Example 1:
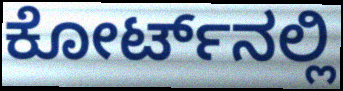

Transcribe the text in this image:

ಕೋರ್ಟ್‌ನಲ್ಲಿ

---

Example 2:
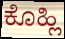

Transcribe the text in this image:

ಕೊಹ್ಲಿ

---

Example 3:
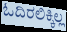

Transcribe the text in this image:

ಓದಿರಲಿಕ್ಕಿಲ್ಲ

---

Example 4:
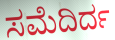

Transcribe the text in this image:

ಸಮೆದಿರ್ದ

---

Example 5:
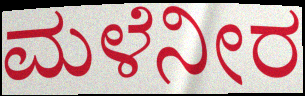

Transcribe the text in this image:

ಮಳೆನೀರ